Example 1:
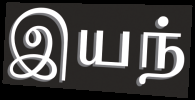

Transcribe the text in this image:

இயந்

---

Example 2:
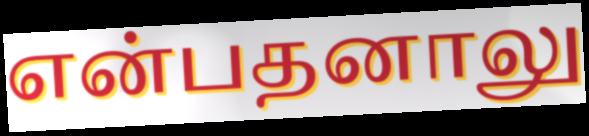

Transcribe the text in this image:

என்பதனாலு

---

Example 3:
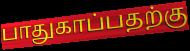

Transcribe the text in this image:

பாதுகாப்பதற்கு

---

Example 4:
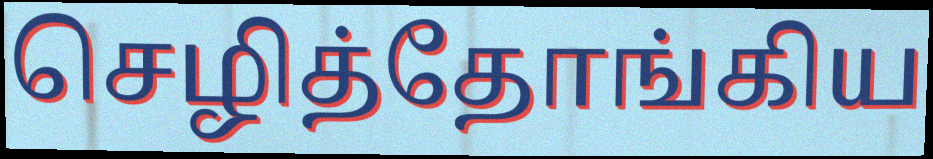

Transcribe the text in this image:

செழித்தோங்கிய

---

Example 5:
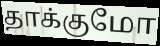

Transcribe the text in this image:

தாக்குமோ